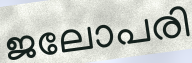
ജലോപരി